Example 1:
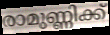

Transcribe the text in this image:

രാമുണ്ണിക്ക്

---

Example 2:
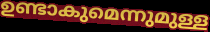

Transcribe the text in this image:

ഉണ്ടാകുമെന്നുമുള്ള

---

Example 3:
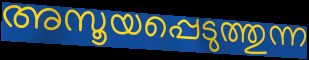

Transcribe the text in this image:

അസൂയപ്പെടുത്തുന്ന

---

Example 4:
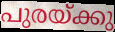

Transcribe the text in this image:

പുരയ്ക്കു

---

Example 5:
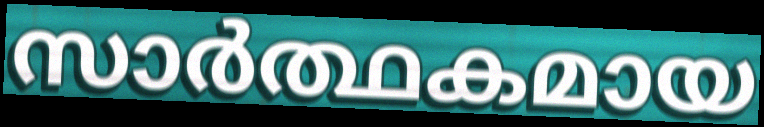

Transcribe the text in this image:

സാർത്ഥകമായ